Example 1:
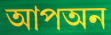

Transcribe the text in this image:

আপঅন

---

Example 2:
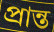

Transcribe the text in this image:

প্রান্ত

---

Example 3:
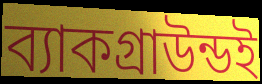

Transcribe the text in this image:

ব্যাকগ্রাউন্ডই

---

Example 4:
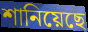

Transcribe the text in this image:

শানিয়েছে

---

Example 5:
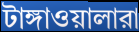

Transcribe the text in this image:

টাঙ্গাওয়ালারা